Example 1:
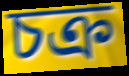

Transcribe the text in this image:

চক্ৰ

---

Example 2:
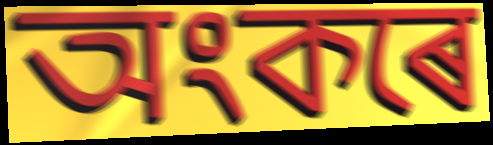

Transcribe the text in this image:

অংকৰে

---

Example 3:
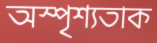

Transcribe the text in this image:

অস্পৃশ্যতাক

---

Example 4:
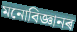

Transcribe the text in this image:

মনোবিজ্ঞানৰ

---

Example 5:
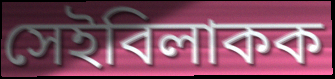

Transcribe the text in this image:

সেইবিলাকক